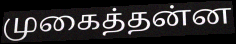
முகைத்தன்ன